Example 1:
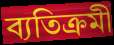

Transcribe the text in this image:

ব্যতিক্ৰমী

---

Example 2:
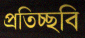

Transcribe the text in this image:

প্ৰতিচ্ছবি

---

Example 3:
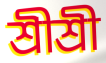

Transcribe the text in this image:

শ্ৰীশ্ৰী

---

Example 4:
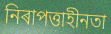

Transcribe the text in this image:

নিৰাপত্তাহীনতা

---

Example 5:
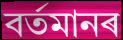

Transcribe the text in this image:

বৰ্তমানৰ